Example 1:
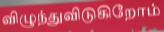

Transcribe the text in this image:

விழுந்துவிடுகிறோம்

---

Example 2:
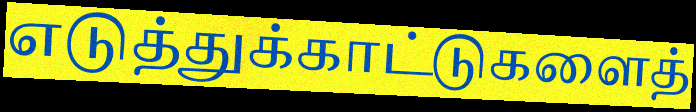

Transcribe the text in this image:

எடுத்துக்காட்டுகளைத்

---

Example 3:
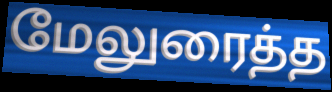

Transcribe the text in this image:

மேலுரைத்த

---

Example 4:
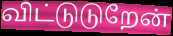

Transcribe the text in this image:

விட்டுடுறேன்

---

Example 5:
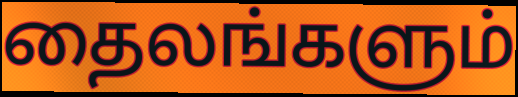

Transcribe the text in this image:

தைலங்களும்